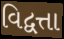
વિદ્વત્તા